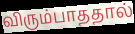
விரும்பாததால்